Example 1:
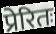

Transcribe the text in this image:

प्रेरितः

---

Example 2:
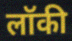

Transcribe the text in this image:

लॉकी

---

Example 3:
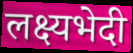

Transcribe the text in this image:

लक्ष्यभेदी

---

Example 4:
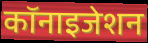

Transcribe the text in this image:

कॉनाइजेशन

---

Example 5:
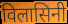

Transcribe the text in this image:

विलासिनी